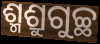
ଶ୍ମଶ୍ରୁଗୁଚ୍ଛ